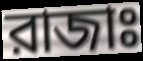
রাজাঃ